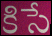
కిసే